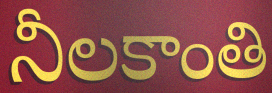
నీలకాంతి